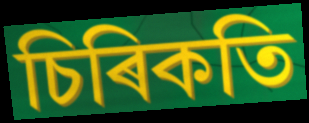
চিৰিকতি